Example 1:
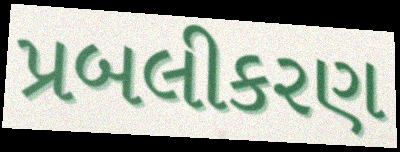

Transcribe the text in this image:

પ્રબલીકરણ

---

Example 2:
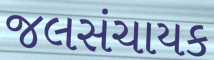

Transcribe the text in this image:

જલસંચાયક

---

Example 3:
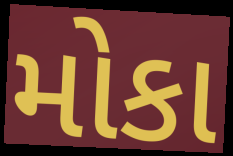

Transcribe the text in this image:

મોકા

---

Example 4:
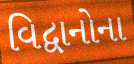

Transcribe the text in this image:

વિદ્વાનોના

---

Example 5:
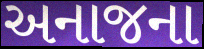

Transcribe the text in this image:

અનાજના